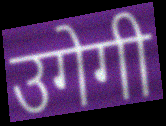
उगेगी